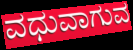
ವಧುವಾಗುವ